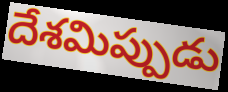
దేశమిప్పుడు